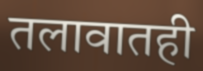
तलावातही